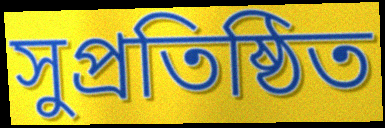
সুপ্ৰতিষ্ঠিত